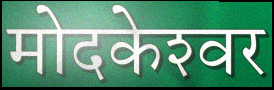
मोदकेश्वर